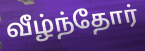
வீழ்ந்தோர்